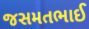
જસમતભાઈ